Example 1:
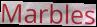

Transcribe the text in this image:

Marbles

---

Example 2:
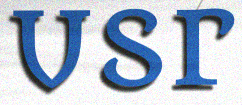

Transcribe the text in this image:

usr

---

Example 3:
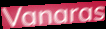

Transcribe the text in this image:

Vanaras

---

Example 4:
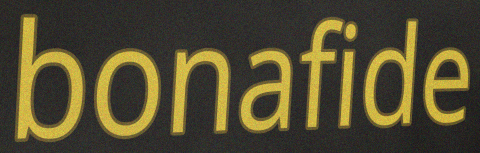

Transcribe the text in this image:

bonafide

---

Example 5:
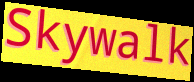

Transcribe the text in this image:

Skywalk